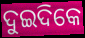
ଦୁଇଦିକେ